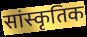
सांस्कृतिक